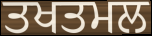
ਤਖਤਮਲ